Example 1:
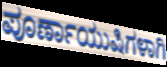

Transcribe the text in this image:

ಪೂರ್ಣಾಯುಷಿಗಳಾಗಿ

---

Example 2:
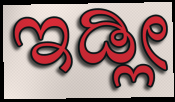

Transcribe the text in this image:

ಇಡ್ಲೀ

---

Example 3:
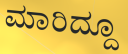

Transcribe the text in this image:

ಮಾರಿದ್ದೂ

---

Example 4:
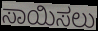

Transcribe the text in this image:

ಸಾಯಿಸಲು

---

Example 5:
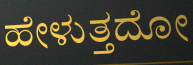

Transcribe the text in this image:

ಹೇಳುತ್ತದೋ